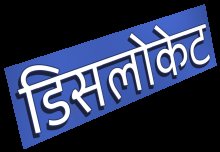
डिसलोकेट